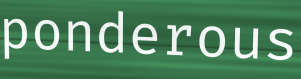
ponderous